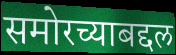
समोरच्याबद्दल